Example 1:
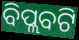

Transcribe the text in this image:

ବିପ୍ଲବଟି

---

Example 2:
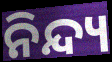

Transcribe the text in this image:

ନିନ୍ଦ୍ୟ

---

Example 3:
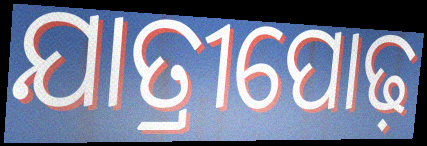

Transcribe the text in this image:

ଯାତ୍ରୀପୋଢ଼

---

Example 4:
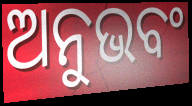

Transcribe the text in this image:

ଅନୁଭବଂ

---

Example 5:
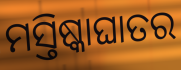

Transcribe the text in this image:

ମସ୍ତିଷ୍କାଘାତର